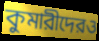
কুমারীদেরও